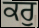
ਕਰੁ